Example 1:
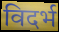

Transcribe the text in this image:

विदर्भ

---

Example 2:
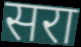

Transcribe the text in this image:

सरा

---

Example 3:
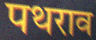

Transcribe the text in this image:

पथराव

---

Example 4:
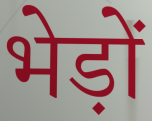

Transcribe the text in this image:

भेड़ों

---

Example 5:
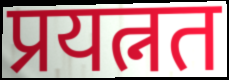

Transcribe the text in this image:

प्रयत्नत